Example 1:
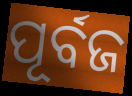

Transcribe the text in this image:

ପୂର୍ବଜ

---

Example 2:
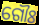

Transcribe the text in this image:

ଗୌଃ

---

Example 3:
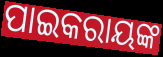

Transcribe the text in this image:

ପାଇକରାୟଙ୍କ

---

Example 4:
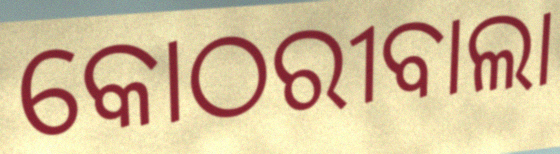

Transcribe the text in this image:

କୋଠରୀବାଲା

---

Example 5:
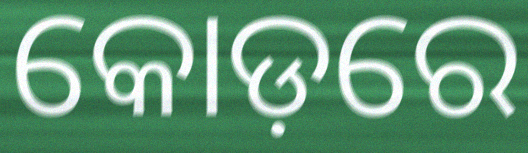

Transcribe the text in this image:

କୋଡ଼ରେ